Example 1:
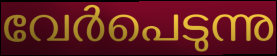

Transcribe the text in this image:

വേർപെടുന്നു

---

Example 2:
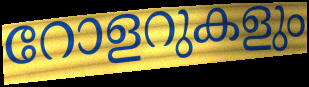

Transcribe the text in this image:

റോളറുകളും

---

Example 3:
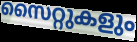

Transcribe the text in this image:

സൈറ്റുകളും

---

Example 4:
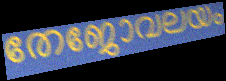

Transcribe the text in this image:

തേജോവലയം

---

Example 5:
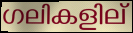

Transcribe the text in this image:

ഗലികളില്